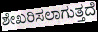
ಶೇಖರಿಸಲಾಗುತ್ತದೆ